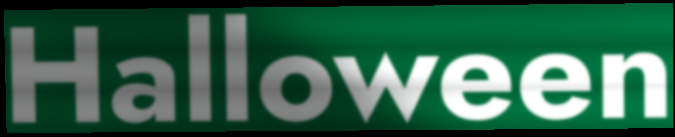
Halloween